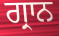
ਗ੍ਰਾਨ